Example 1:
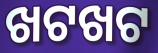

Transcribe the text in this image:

ଖଟଖଟ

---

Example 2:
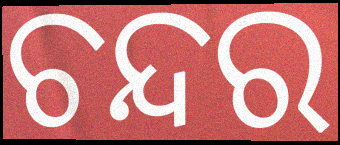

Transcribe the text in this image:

ଚନ୍ଦର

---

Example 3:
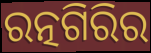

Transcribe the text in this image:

ରତ୍ନଗିରିର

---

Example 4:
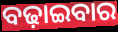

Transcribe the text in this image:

ବଢ଼ାଇବାର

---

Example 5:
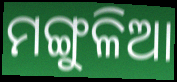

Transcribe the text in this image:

ମଙ୍ଗୁଳିଆ